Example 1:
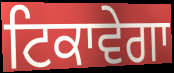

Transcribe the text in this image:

ਟਿਕਾਵੇਗਾ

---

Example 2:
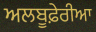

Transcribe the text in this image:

ਅਲਬੂਫ਼ੇਰੀਆ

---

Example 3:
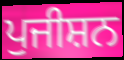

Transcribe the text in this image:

ਪੁਜੀਸ਼ਨ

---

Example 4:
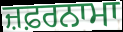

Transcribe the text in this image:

ਜ਼ਫ਼ਰਨਾਮਾ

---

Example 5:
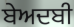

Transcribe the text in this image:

ਬੇਅਦਬੀ